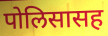
पोलिसासह